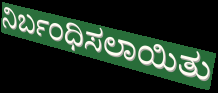
ನಿರ್ಬಂಧಿಸಲಾಯಿತು